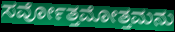
ಸರ್ವೋತ್ತಮೋತ್ತಮನು